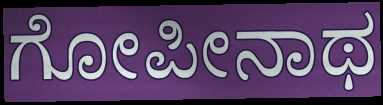
ಗೋಪೀನಾಥ